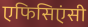
एफिसिएंसी